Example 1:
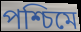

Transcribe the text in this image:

পশ্চিমে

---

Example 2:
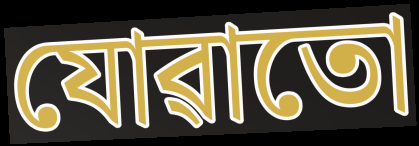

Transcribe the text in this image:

যোৱাতো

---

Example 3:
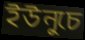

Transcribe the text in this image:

ইউনুচে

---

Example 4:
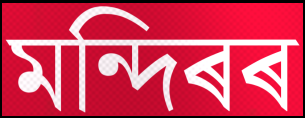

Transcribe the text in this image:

মন্দিৰৰ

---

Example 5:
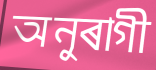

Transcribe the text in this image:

অনুৰাগী